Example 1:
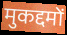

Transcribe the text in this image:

मुकद्दमों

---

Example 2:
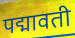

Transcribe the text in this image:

पद्मावती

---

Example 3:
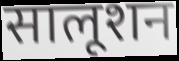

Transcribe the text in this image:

सालूशन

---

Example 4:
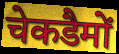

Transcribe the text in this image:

चेकडैमों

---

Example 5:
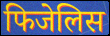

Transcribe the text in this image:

फिजेलिस